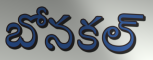
బోనకల్